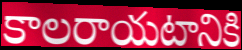
కాలరాయటానికి